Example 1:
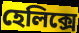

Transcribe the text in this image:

হেলিক্সে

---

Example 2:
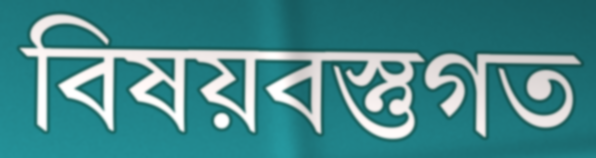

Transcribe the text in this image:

বিষয়বস্তুগত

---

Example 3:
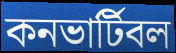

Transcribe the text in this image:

কনভার্টিবল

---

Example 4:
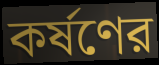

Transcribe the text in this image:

কর্ষণের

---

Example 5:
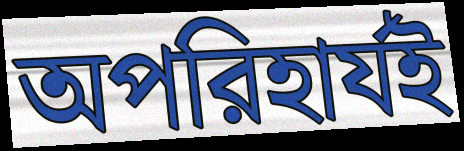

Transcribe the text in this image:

অপরিহার্যই